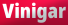
Vinigar